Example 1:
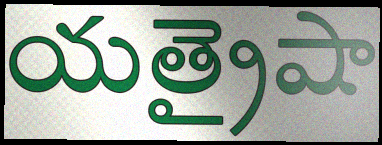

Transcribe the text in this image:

యత్రైషా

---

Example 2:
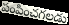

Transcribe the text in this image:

పంపించగలడు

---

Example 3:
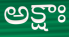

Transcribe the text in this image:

అక్షాః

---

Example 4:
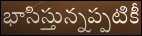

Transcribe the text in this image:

భాసిస్తున్నప్పటికీ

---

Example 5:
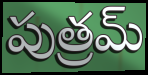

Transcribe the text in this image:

పుత్రమ్